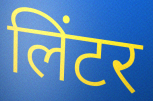
लिंटर